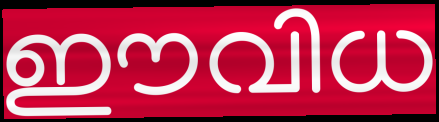
ഈവിധ